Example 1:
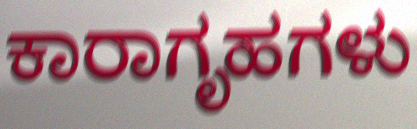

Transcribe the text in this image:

ಕಾರಾಗೃಹಗಳು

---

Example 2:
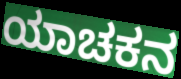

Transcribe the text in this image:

ಯಾಚಕನ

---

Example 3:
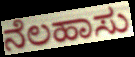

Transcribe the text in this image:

ನೆಲಹಾಸು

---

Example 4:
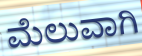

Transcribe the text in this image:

ಮೆಲುವಾಗಿ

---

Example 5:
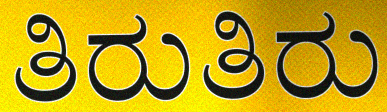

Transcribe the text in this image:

ತಿರುತಿರು